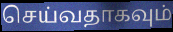
செய்வதாகவும்